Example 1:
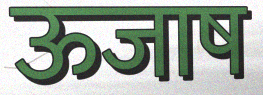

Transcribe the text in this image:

ऊजाष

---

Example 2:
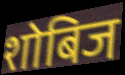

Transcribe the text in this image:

शोबिज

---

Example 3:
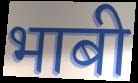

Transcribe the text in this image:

भाबी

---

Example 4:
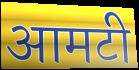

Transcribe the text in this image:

आमटी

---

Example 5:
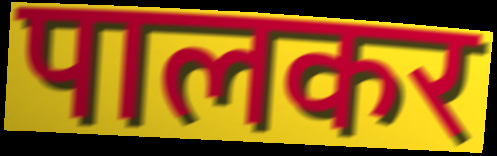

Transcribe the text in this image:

पालकर